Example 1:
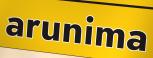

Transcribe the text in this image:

arunima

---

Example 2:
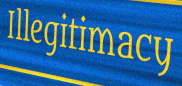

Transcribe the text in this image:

Illegitimacy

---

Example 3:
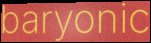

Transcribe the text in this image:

baryonic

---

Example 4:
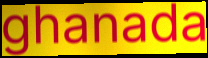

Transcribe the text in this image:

ghanada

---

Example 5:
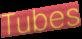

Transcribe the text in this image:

Tubes